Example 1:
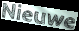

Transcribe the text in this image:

Nieuwe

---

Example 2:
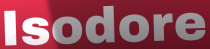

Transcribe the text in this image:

Isodore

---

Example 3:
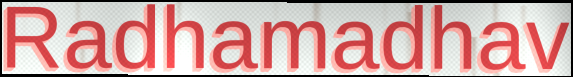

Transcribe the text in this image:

Radhamadhav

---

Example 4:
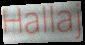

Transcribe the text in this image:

Hallaj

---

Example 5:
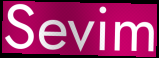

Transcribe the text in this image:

Sevim